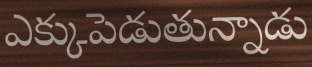
ఎక్కుపెడుతున్నాడు